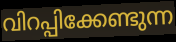
വിറപ്പിക്കേണ്ടുന്ന